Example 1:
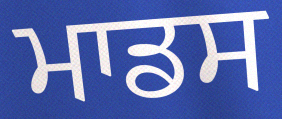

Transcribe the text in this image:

ਮਾਡਸ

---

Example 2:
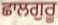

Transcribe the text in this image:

ਛਾਲਗੁਰੂ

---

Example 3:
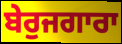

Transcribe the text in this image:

ਬੇਰੁਜਗਾਰਾ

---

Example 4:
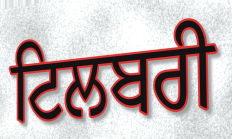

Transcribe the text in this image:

ਟਿਲਬਰੀ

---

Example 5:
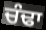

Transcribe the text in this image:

ਚੰਢਾ